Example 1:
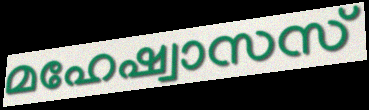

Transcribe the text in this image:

മഹേഷ്വാസസ്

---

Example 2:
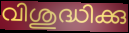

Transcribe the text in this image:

വിശുദ്ധിക്കു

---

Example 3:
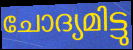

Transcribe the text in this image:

ചോദ്യമിട്ടു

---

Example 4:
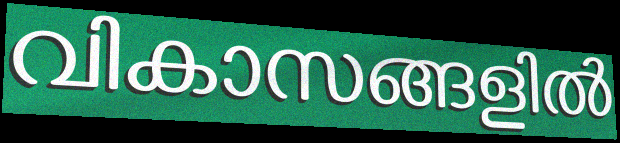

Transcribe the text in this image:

വികാസങ്ങളിൽ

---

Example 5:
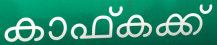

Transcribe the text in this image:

കാഫ്കക്ക്